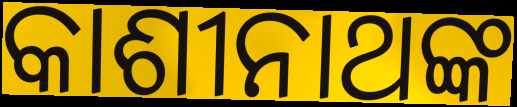
କାଶୀନାଥଙ୍କ